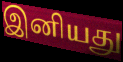
இனியது